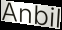
Anbil